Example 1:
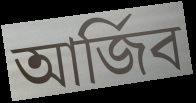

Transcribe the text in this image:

আৰ্জিব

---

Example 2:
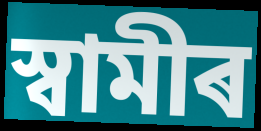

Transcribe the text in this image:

স্বামীৰ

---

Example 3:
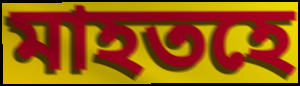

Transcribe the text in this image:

মাহতহে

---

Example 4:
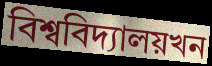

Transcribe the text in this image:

বিশ্ববিদ্যালয়খন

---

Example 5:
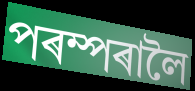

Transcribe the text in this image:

পৰম্পৰালৈ